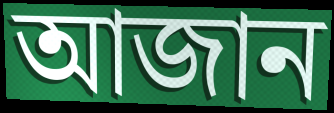
আজান